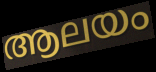
ആലയം